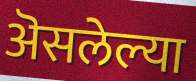
ऄसलेल्या